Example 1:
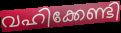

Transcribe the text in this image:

വഹിക്കേണ്ടി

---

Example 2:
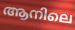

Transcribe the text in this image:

ആനിലെ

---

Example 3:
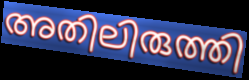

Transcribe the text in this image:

അതിലിരുത്തി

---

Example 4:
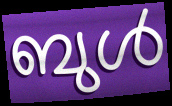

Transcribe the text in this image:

ബുൾ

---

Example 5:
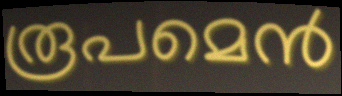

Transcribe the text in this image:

രൂപമെൻ